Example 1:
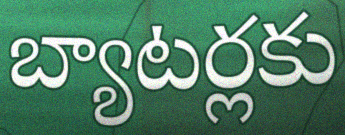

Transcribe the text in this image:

బ్యాటర్లకు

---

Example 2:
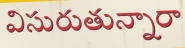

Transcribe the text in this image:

విసురుతున్నారా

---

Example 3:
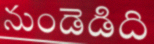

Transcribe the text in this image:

నుండెడిది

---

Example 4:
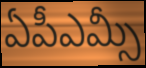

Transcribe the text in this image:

ఏపీఎమ్సీ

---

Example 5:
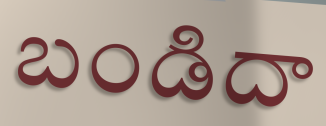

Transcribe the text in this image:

బండిదా